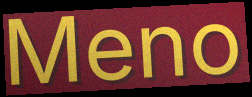
Meno